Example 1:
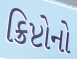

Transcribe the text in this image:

ક્રિપ્ટોનો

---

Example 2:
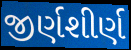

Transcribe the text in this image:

જીર્ણશીર્ણ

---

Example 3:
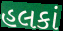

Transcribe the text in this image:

હલકાં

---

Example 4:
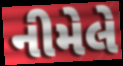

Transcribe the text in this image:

નીમેલે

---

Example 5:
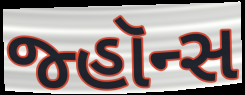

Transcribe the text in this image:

જ્હૉન્સ